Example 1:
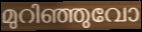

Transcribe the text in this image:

മുറിഞ്ഞുവോ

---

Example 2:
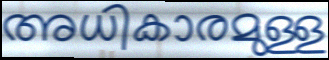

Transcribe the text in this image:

അധികാരമുള്ള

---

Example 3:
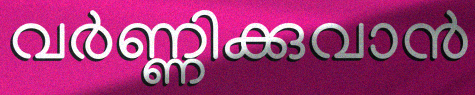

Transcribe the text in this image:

വർണ്ണിക്കുവാൻ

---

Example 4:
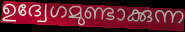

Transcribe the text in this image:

ഉദ്വേഗമുണ്ടാക്കുന്ന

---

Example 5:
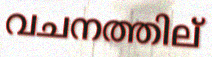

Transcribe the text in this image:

വചനത്തില്